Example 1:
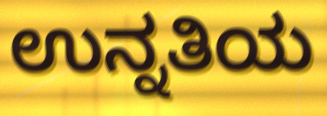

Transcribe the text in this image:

ಉನ್ನತಿಯ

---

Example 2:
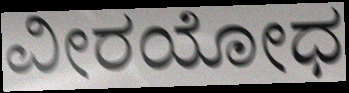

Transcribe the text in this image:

ವೀರಯೋಧ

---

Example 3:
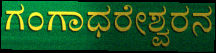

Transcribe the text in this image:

ಗಂಗಾಧರೇಶ್ವರನ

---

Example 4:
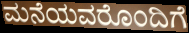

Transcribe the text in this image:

ಮನೆಯವರೊಂದಿಗೆ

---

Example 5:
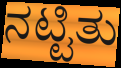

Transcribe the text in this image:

ನಟ್ಟಿತು